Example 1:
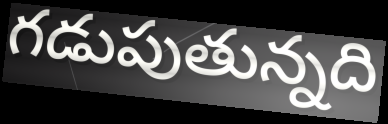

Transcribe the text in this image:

గడుపుతున్నది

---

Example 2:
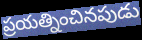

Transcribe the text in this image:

ప్రయత్నించినపుడు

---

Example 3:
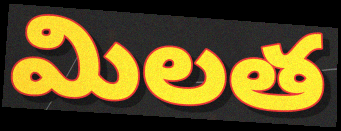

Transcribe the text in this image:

మిలత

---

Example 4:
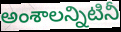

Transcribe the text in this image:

అంశాలన్నిటినీ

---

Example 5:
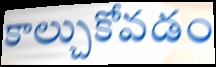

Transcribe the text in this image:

కాల్చుకోవడం